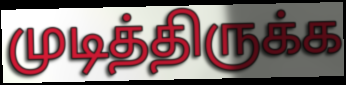
முடித்திருக்க